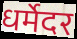
धर्मेदर